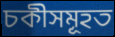
চকীসমূহত